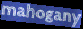
mahogany